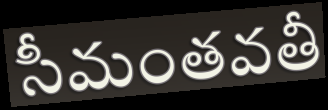
సీమంతవతీ